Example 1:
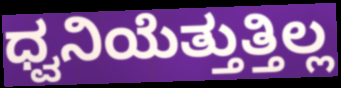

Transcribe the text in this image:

ಧ್ವನಿಯೆತ್ತುತ್ತಿಲ್ಲ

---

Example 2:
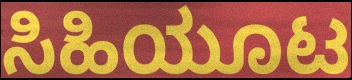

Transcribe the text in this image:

ಸಿಹಿಯೂಟ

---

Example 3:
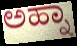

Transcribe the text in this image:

ಅಹ್ನಾ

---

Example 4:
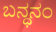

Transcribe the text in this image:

ಬನ್ಧನಂ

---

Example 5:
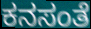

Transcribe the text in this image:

ಕನಸಂತೆ